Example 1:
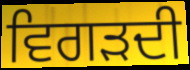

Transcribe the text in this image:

ਵਿਗੜਦੀ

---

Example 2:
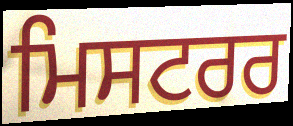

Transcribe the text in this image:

ਮਿਸਟਰਰ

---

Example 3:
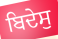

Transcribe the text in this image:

ਬਿਦੇਸੁ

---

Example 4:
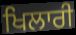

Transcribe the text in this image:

ਖਿਲਾਰੀ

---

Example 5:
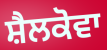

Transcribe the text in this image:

ਸ਼ੈਲਕੋਵਾ